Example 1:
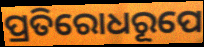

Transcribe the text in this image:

ପ୍ରତିରୋଧରୂପେ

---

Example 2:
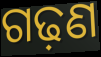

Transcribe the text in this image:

ଗଢ଼ଣ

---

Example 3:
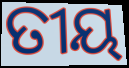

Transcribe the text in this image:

ତୀୟ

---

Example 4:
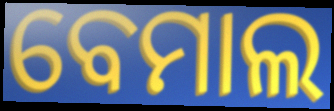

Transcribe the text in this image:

ବେମାଲ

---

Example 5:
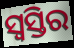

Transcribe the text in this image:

ସ୍ଵସ୍ତିର